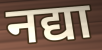
नद्या